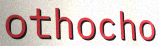
othocho